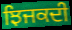
ਝਿਜਕਦੀ